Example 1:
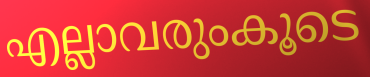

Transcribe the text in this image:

എല്ലാവരുംകൂടെ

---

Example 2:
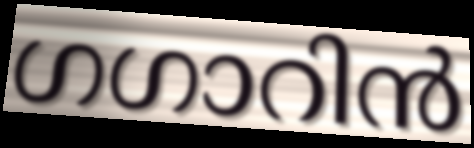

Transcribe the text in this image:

ഗഗാറിൻ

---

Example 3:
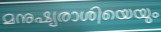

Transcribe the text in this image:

മനുഷ്യരാശിയെയും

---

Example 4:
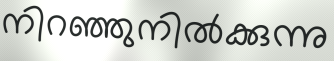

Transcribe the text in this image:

നിറഞ്ഞുനിൽക്കുന്നു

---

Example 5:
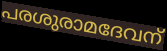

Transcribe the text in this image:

പരശുരാമദേവന്